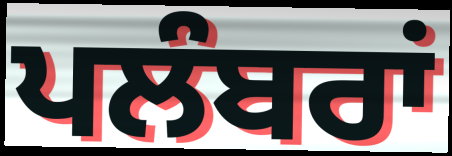
ਪਲੰਬਰਾਂ